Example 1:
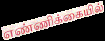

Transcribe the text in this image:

எண்ணிக்கையில்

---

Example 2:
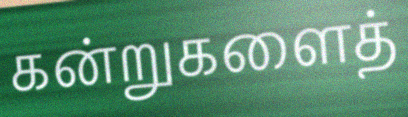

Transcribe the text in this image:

கன்றுகளைத்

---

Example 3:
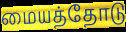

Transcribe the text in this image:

மையத்தோடு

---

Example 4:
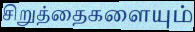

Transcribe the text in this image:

சிறுத்தைகளையும்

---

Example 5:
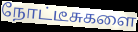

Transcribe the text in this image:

நோட்டீசுகளை